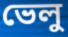
ভেলু